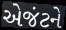
એજંટને